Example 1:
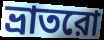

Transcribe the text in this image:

ভ্রাতরো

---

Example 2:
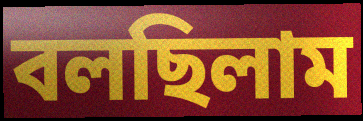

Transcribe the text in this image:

বলছিলাম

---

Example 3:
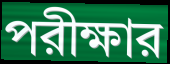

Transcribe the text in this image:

পরীক্ষার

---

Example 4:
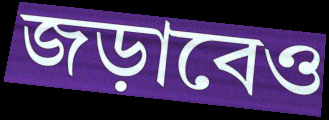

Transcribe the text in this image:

জড়াবেও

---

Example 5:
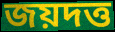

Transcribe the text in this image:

জয়দত্ত